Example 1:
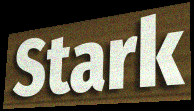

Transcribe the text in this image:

Stark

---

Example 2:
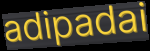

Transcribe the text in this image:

adipadai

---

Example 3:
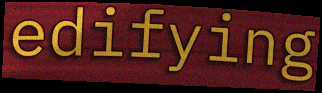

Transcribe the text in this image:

edifying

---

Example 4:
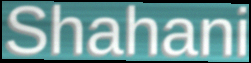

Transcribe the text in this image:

Shahani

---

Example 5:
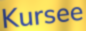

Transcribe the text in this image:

Kursee